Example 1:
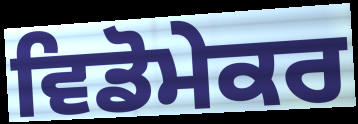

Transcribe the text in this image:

ਵਿਡੋਮੇਕਰ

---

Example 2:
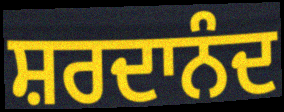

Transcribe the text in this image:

ਸ਼ਰਦਾਨੰਦ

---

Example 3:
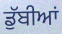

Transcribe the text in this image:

ਡੁੱਬੀਆਂ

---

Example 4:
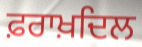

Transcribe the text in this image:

ਫ਼ਰਾਖ਼ਦਿਲ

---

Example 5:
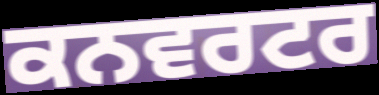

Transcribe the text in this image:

ਕਨਵਰਟਰ